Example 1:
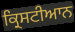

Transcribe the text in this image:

ਕ੍ਰਿਸਟੀਆਨ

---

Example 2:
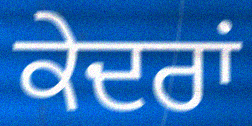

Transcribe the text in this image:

ਕੇਦਰਾਂ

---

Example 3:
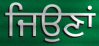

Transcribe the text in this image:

ਜਿਉਣਾਂ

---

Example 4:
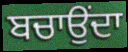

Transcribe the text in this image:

ਬਚਾਉਂਦਾ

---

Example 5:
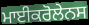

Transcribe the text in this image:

ਮਾਈਕਰੋਲੇਨਸ